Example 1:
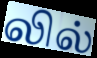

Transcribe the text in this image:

லில்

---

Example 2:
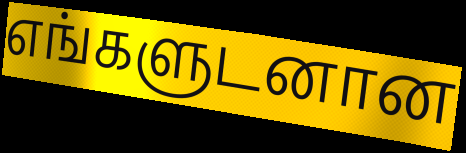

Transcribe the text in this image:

எங்களுடனான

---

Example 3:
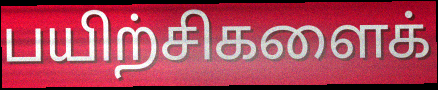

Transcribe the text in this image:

பயிற்சிகளைக்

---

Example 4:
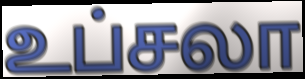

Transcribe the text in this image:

உப்சலா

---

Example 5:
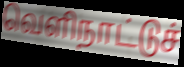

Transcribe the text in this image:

வெளிநாட்டுச்